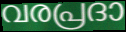
വരപ്രദാ